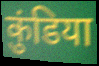
कुंडिया